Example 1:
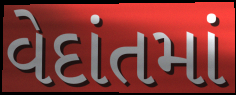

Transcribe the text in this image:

વેદાંતમાં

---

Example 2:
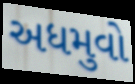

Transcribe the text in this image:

અધમુવો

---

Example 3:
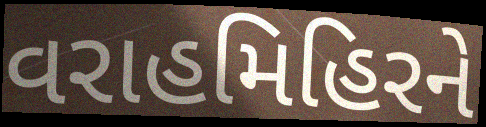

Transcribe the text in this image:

વરાહમિહિરને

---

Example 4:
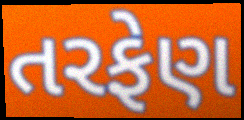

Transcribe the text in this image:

તરફેણ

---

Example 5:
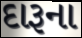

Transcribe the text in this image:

દારૂના